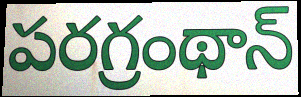
పరగ్రంథాన్